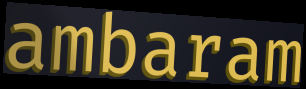
ambaram